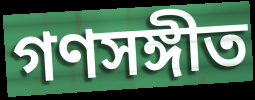
গণসঙ্গীত